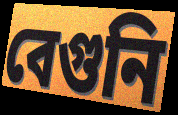
বেগুনি